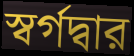
স্বর্গদ্বার